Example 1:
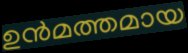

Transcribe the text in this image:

ഉൻമത്തമായ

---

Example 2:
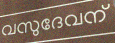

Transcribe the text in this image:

വസുദേവന്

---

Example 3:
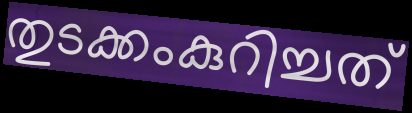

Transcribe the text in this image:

തുടക്കംകുറിച്ചത്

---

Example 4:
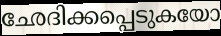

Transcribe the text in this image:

ഛേദിക്കപ്പെടുകയോ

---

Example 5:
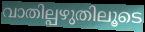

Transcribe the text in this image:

വാതില്പഴുതിലൂടെ